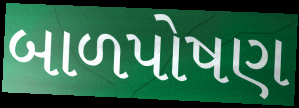
બાળપોષણ